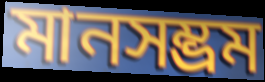
মানসম্ভ্রম